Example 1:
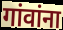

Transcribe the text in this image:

गांवांना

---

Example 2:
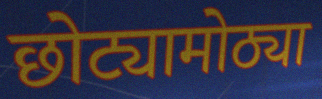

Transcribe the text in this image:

छोट्यामोठ्या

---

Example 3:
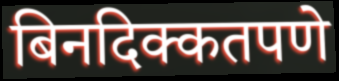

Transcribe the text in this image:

बिनदिक्कतपणे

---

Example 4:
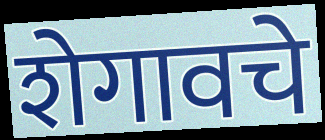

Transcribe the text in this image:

शेगावचे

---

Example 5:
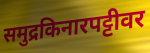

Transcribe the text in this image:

समुद्रकिनारपट्टीवर